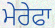
ਮੇਰੇਫਾ